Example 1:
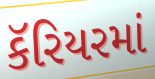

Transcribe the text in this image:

કૅરિયરમાં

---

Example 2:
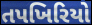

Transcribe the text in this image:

તપખિરિયો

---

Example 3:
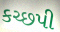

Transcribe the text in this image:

કચ્છપી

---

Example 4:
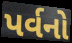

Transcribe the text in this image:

પર્વનો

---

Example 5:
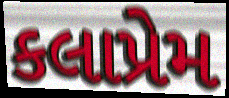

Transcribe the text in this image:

કલાપ્રેમ